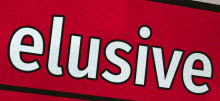
elusive